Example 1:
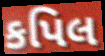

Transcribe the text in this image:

કપિલ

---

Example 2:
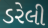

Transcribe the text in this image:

ડરેલી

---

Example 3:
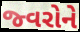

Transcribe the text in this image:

જ્વરોને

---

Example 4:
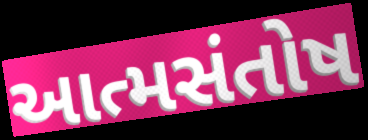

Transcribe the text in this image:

આત્મસંતોષ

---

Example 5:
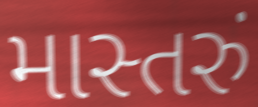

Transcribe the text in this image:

માસ્તરું